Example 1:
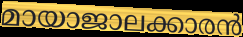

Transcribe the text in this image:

മായാജാലക്കാരൻ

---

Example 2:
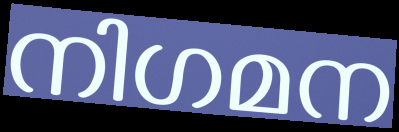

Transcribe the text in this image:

നിഗമന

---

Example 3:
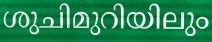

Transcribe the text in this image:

ശുചിമുറിയിലും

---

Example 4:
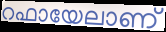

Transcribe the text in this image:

റഫായേലാണ്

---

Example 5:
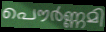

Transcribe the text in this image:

പൌർണ്ണമി